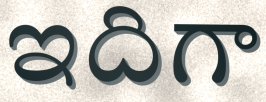
ఇదిగా